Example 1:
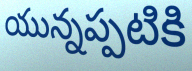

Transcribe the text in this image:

యున్నప్పటికి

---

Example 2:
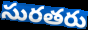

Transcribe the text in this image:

సురతరు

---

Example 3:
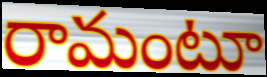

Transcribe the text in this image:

రామంటూ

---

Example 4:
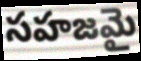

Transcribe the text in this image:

సహజమై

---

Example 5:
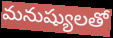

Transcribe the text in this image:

మనుష్యులతో